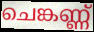
ചെങ്കണ്ണ്